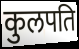
कुलपति